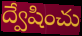
ద్వేషించు